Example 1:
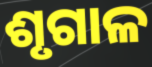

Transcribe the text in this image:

ଶୃଗାଳ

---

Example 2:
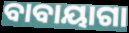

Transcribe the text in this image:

ବାବାୟାଗା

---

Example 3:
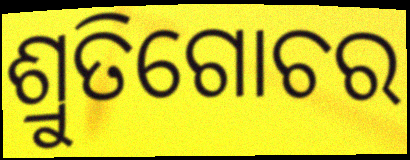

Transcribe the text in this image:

ଶ୍ରୁତିଗୋଚର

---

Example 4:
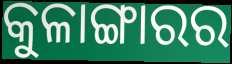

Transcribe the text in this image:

କୁଳାଙ୍ଗାରର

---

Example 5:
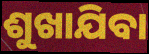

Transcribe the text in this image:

ଶୁଖାଯିବା